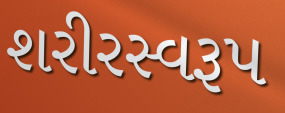
શરીરસ્વરૂપ